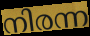
നിരന്ന